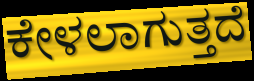
ಕೇಳಲಾಗುತ್ತದೆ